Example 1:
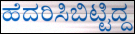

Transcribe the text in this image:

ಹೆದರಿಸಿಬಿಟ್ಟಿದ್ದ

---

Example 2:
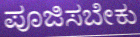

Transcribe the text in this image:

ಪೂಜಿಸಬೇಕು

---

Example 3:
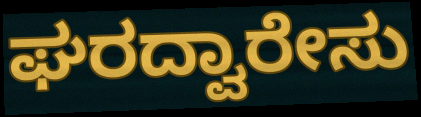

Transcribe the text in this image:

ಘರದ್ವಾರೇಸು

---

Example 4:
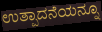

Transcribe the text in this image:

ಉತ್ಪಾದನೆಯನ್ನೂ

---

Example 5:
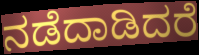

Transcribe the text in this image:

ನಡೆದಾಡಿದರೆ